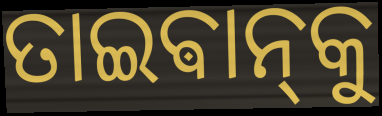
ତାଇଵାନ୍‌କୁ